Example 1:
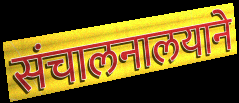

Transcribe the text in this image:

संचालनालयाने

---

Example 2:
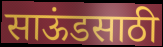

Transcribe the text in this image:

साऊंडसाठी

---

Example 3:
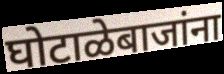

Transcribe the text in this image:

घोटाळेबाजांना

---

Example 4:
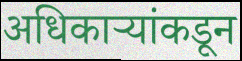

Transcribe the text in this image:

अधिकाऱ्यांकडून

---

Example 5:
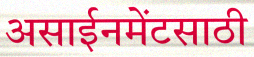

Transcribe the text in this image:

असाईनमेंटसाठी